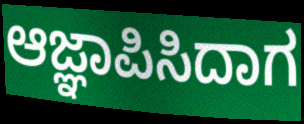
ಆಜ್ಞಾಪಿಸಿದಾಗ